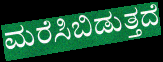
ಮರೆಸಿಬಿಡುತ್ತದೆ